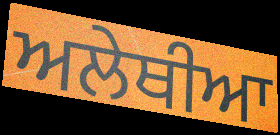
ਅਲੇਥੀਆ